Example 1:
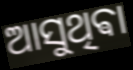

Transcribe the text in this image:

ଆସୁଥିଵା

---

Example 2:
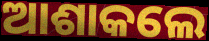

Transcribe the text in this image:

ଆଶାକଲେ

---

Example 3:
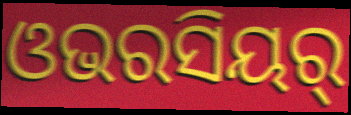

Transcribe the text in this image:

ଓଭରସିୟର୍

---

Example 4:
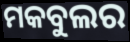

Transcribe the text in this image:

ମକବୁଲର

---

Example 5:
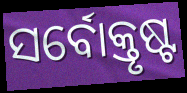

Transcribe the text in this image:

ସର୍ବୋକ୍ତୃଷ୍ଟ